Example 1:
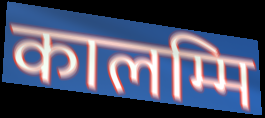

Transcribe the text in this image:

कालम्मि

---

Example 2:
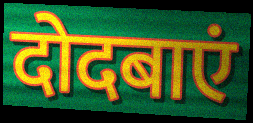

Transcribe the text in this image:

दोदबाएं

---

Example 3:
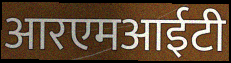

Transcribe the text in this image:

आरएमआईटी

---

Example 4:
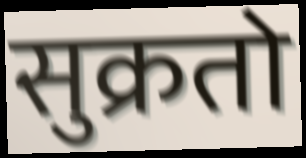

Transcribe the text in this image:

सुक्रतो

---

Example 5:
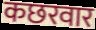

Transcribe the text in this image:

कछरवार